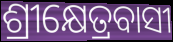
ଶ୍ରୀକ୍ଷେତ୍ରବାସୀ